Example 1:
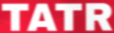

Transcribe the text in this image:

TATR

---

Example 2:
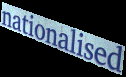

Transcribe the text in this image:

nationalised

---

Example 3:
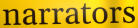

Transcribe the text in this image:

narrators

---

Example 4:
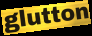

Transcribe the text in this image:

glutton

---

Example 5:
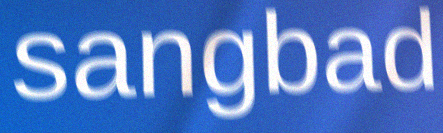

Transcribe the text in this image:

sangbad